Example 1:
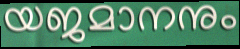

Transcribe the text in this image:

യജമാനനും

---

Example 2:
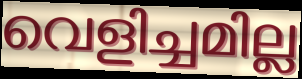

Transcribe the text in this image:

വെളിച്ചമില്ല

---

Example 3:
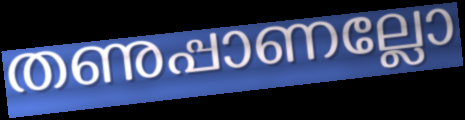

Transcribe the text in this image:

തണുപ്പാണല്ലോ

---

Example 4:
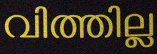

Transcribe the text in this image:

വിത്തില്ല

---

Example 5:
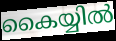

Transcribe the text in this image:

കൈയ്യിൽ